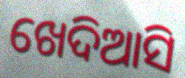
ଖେଦିଆସି